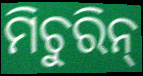
ମିଚୁରିନ୍